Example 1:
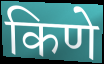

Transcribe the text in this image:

किणे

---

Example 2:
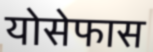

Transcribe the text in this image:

योसेफास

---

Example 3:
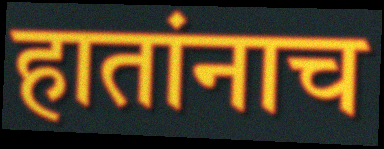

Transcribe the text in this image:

हातांनाच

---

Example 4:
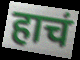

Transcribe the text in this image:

हाचं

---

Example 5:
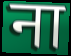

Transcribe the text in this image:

ना